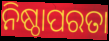
ନିଷ୍ଠାପରତା